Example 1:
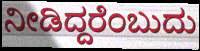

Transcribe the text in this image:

ನೀಡಿದ್ದರೆಂಬುದು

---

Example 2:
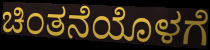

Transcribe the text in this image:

ಚಿಂತನೆಯೊಳಗೆ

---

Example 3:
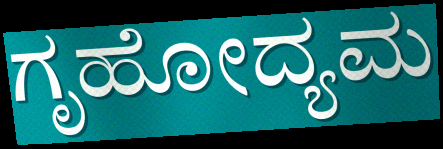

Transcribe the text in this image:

ಗೃಹೋದ್ಯಮ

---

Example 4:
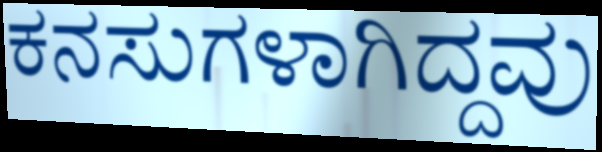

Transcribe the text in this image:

ಕನಸುಗಳಾಗಿದ್ದವು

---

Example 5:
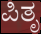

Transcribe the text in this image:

ಪಿತೃ